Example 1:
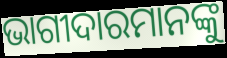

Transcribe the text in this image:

ଭାଗୀଦାରମାନଙ୍କୁ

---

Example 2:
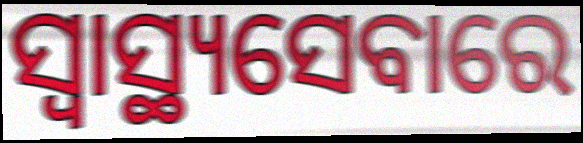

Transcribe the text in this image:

ସ୍ୱାସ୍ଥ୍ୟସେବାରେ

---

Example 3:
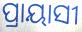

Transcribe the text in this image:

ପ୍ରାୟାସୀ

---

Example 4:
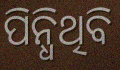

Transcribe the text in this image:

ପିନ୍ଧିଥିବି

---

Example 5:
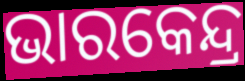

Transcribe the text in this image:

ଭାରକେନ୍ଦ୍ର